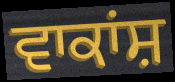
ਵਾਕਾਂਸ਼